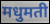
मधुमती